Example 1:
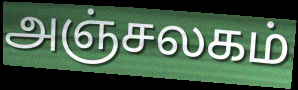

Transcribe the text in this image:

அஞ்சலகம்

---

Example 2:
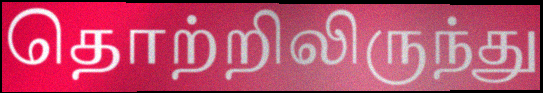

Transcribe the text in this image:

தொற்றிலிருந்து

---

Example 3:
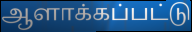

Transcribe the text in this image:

ஆளாக்கப்பட்டு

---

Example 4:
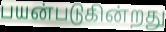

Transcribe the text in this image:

பயன்படுகின்றது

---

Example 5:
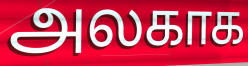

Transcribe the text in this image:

அலகாக